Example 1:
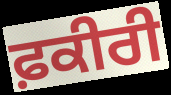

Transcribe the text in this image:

ਫ਼ਕੀਰੀ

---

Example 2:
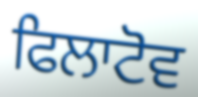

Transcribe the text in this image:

ਫਿਲਾਟੋਵ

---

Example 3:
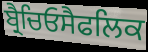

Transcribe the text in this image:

ਬ੍ਰੈਚਿਓਸੈਫਲਿਕ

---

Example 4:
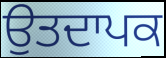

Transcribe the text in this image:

ਉਤਦਾਪਕ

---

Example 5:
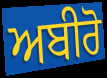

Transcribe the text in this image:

ਅਬੀਰੋ